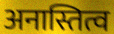
अनास्तित्व